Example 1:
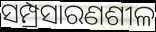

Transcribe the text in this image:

ସମ୍ପ୍ରସାରଣଶୀଳ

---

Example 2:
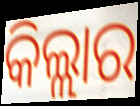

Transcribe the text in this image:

କିଲ୍ଲାର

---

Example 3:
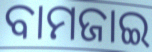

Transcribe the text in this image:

ବାମଜାଇ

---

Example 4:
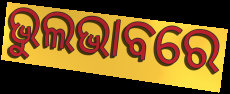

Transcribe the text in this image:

ଭୁଲଭାବରେ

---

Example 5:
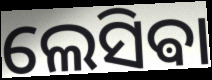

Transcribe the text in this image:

ଲେସିଵା